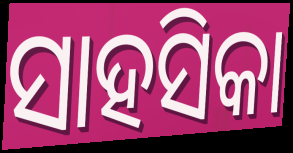
ସାହସିକା